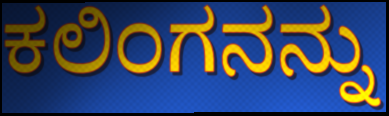
ಕಲಿಂಗನನ್ನು